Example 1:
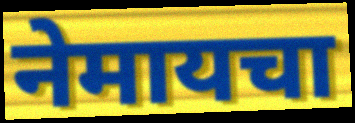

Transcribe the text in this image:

नेमायचा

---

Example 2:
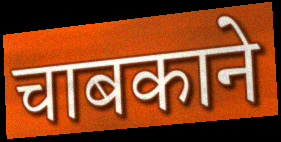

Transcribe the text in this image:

चाबकाने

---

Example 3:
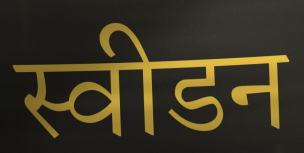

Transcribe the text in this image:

स्वीडन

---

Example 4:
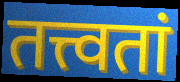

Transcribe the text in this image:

तत्त्वतां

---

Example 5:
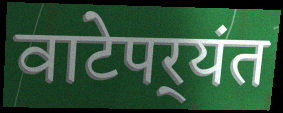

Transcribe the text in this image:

वाटेपर्यंत